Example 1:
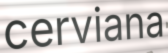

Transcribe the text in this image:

cerviana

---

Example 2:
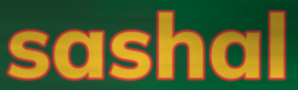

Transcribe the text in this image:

sashal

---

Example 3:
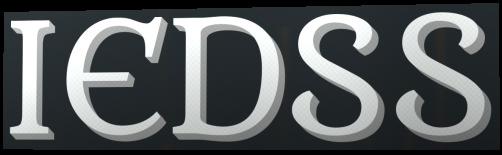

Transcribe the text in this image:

IEDSS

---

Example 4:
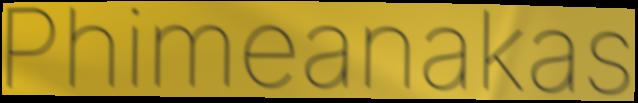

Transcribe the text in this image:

Phimeanakas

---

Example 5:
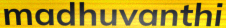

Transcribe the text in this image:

madhuvanthi